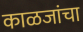
काळजांचा